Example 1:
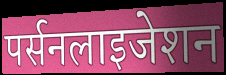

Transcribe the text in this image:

पर्सनलाइजेशन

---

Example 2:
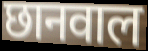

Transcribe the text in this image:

छानवाल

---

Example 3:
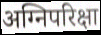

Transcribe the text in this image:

अग्निपरिक्षा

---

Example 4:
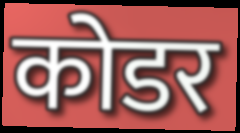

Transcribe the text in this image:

कोडर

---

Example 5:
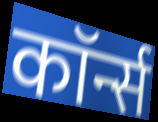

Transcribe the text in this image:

कॉर्न्स